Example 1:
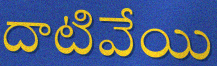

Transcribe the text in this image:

దాటివేయి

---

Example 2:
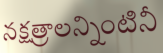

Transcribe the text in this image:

నక్షత్రాలన్నింటినీ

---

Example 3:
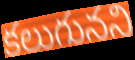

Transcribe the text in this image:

కలుగునని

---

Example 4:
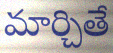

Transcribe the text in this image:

మార్చితే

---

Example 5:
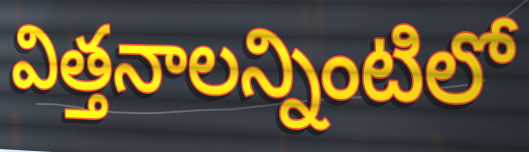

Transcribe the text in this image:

విత్తనాలన్నింటిలో